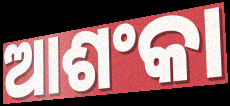
ଆଶଂକା